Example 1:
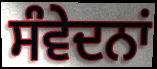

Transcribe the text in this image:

ਸੰਵੇਦਨਾਂ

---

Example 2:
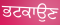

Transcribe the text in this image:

ਭਟਕਾਉਣ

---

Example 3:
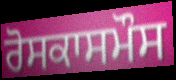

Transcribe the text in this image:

ਰੋਸਕਾਸਮੌਸ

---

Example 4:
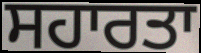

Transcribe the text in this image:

ਸਹਾਰਤਾ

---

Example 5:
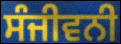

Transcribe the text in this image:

ਸੰਜੀਵਨੀ